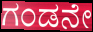
ಗಂಡನೇ